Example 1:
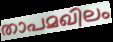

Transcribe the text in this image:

താപമഖിലം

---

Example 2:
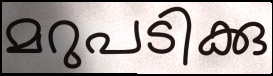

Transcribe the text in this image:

മറുപടിക്കു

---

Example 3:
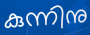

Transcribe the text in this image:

കുന്നിനു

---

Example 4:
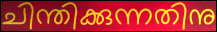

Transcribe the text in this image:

ചിന്തിക്കുന്നതിനു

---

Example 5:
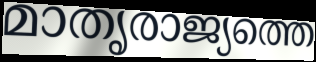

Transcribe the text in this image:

മാതൃരാജ്യത്തെ